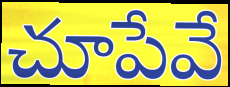
చూపేవే